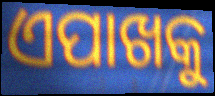
ଏପାଖକୁ